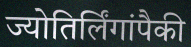
ज्योतिर्लिंगांपैकी